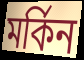
মর্কিন